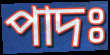
পাদঃ